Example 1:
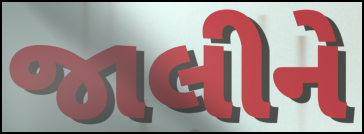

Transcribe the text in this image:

જાલીને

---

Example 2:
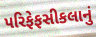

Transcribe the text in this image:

પરિફેફસીકલાનું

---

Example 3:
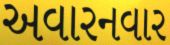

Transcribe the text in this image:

અવારનવાર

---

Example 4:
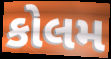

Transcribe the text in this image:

કોલમ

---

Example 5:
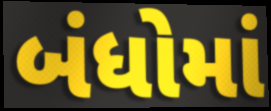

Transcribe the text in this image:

બંધોમાં